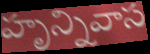
హృన్నివాస